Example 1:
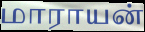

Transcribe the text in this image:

மாராயன்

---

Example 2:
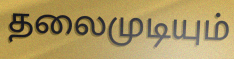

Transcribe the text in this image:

தலைமுடியும்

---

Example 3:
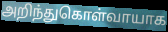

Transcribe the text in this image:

அறிந்துகொள்வாயாக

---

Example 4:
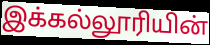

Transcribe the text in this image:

இக்கல்லூரியின்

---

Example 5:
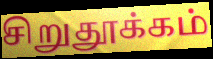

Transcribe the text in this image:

சிறுதூக்கம்